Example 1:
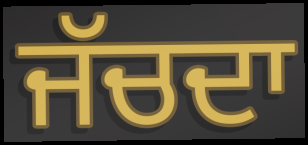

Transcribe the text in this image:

ਜੱਚਦਾ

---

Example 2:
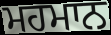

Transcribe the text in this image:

ਮਹਮਾਨ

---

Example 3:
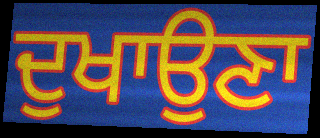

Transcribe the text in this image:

ਦੁਖਾਉਣਾ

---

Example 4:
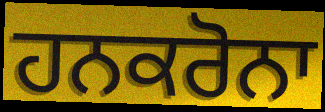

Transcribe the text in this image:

ਹਨਕਰੋਨਾ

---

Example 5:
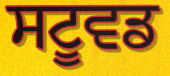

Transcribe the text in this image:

ਸਟੂਵਡ